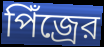
পিঁজ্রের